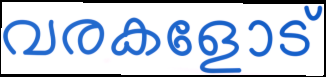
വരകളോട്